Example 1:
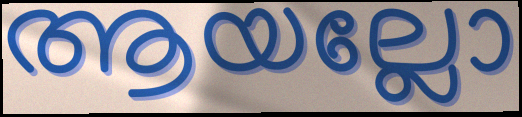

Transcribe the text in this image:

ആയല്ലോ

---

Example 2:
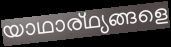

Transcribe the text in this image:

യാഥാര്ഥ്യങ്ങളെ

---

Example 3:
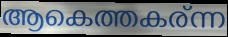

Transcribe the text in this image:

ആകെത്തകര്ന്ന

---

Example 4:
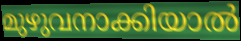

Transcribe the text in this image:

മുഴുവനാക്കിയാൽ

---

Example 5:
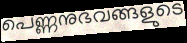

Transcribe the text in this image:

പെണ്ണനുഭവങ്ങളുടെ